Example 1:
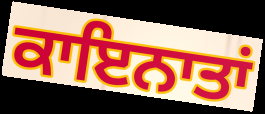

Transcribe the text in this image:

ਕਾਇਨਾਤਾਂ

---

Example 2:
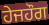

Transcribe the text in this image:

ਹੇਜਹੌਗ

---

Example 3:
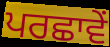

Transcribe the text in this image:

ਪਰਛਾਵੇਂ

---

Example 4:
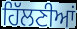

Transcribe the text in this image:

ਹਿੱਲਣੀਆਂ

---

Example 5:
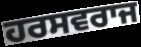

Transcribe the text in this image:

ਹਰਸਵਰਾਜ